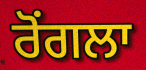
ਰੋਂਗਲਾ